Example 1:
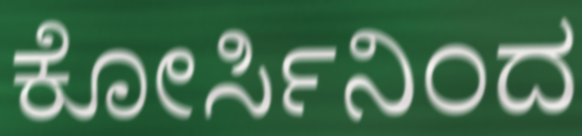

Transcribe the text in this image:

ಕೋರ್ಸಿನಿಂದ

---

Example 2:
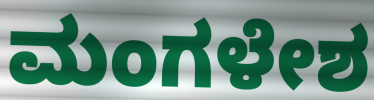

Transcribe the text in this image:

ಮಂಗಳೇಶ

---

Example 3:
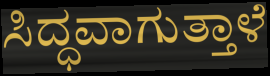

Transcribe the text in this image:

ಸಿದ್ಧವಾಗುತ್ತಾಳೆ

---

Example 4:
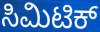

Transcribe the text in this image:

ಸಿಮಿಟಿಕ್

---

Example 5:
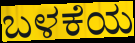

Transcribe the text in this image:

ಬಳಕೆಯ